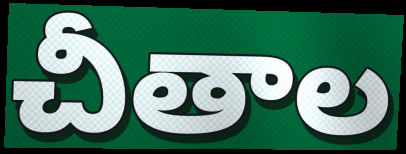
చీతాల